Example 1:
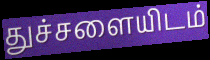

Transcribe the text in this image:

துச்சளையிடம்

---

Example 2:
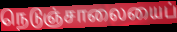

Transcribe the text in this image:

நெடுஞ்சாலையைப்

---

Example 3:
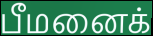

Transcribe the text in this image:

பீமனைக்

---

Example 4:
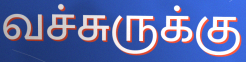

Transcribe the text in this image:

வச்சுருக்கு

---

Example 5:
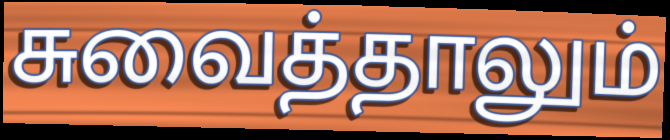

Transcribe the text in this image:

சுவைத்தாலும்